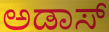
ಅಡಾಸ್